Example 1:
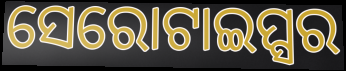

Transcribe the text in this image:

ସେରୋଟାଇପ୍ସର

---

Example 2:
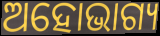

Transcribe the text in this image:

ଅହୋଭାଗ୍ୟ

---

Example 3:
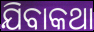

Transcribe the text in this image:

ଯିବାକଥା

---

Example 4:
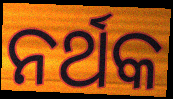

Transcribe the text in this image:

ନର୍ଥକ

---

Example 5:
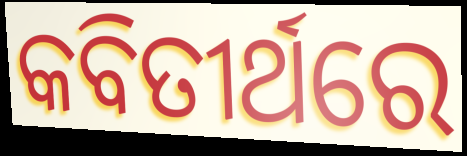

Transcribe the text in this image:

କବିତୀର୍ଥରେ